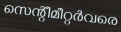
സെന്റീമീറ്റർവരെ